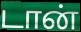
டான்